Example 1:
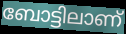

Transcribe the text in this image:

ബോട്ടിലാണ്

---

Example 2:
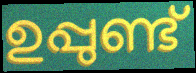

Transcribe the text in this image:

ഉപ്പുണ്ട്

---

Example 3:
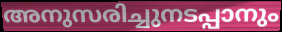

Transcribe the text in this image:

അനുസരിച്ചുനടപ്പാനും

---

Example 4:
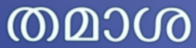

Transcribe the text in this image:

തമാശ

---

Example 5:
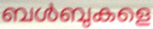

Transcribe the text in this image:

ബൾബുകളെ